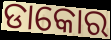
ଡାକୋର